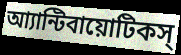
আ্যান্টিবায়োটিকস্